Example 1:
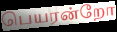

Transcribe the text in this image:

பெயரன்றோ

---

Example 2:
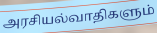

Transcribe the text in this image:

அரசியல்வாதிகளும்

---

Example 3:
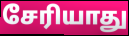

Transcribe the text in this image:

சேரியாது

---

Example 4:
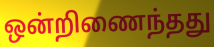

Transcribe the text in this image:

ஒன்றிணைந்தது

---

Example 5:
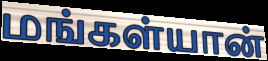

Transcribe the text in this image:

மங்கள்யான்